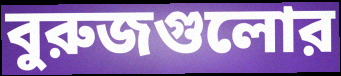
বুরুজগুলোর